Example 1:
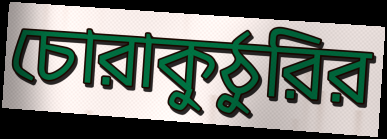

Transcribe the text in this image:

চোরাকুঠুরির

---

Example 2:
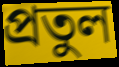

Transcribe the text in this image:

প্রতুল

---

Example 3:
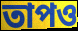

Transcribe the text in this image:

তাপও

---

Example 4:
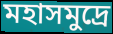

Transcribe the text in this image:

মহাসমুদ্রে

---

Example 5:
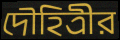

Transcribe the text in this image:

দৌহিত্রীর